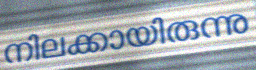
നിലക്കായിരുന്നു